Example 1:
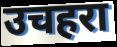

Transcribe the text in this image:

उचहरा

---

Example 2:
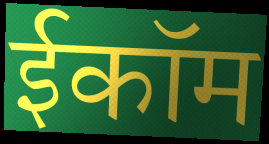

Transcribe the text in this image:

ईकॉम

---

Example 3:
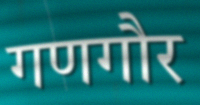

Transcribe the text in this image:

गणगौर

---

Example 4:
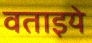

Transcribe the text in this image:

वताइये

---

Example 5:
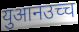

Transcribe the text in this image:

युआनउच्च